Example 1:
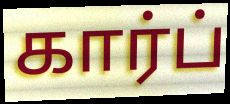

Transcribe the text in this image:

கார்ப்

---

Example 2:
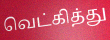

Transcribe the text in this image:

வெட்கித்து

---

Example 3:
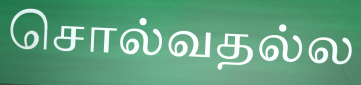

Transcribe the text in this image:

சொல்வதல்ல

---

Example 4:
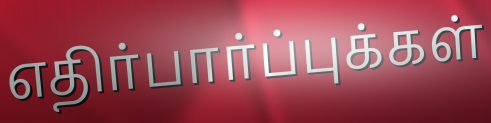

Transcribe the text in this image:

எதிர்பார்ப்புக்கள்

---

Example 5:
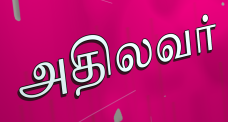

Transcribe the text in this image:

அதிலவர்